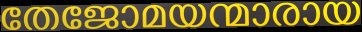
തേജോമയന്മാരായ